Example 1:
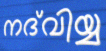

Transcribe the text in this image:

നദ്‌വിയ്യ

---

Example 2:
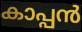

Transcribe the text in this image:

കാപ്പൻ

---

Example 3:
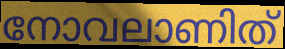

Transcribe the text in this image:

നോവലാണിത്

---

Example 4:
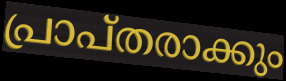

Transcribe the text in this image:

പ്രാപ്തരാക്കും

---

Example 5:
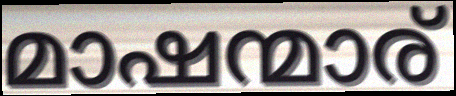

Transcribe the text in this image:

മാഷന്മാര്